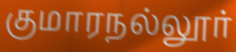
குமாரநல்லூர்